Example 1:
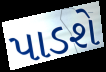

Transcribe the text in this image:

પાડશે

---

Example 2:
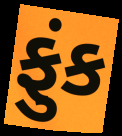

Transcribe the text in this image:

ફુંક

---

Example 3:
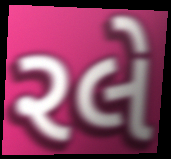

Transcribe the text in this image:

રલે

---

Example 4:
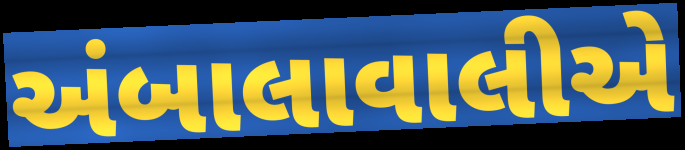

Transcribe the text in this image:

અંબાલાવાલીએ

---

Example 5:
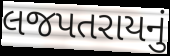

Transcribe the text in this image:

લજપતરાયનું